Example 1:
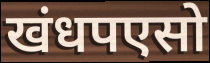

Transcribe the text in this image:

खंधपएसो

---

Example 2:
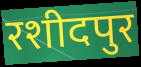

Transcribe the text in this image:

रशीदपुर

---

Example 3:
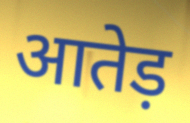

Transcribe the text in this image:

आतेड़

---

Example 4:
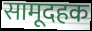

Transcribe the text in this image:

सामूदहक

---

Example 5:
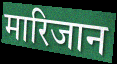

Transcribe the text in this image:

मारिजान